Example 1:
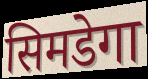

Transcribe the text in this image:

सिमडेगा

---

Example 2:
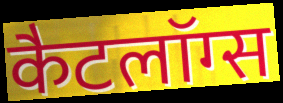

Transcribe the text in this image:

कैटलॉग्स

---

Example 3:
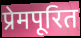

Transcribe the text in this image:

प्रेमपूरित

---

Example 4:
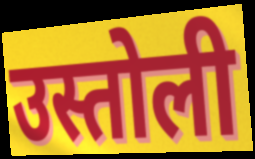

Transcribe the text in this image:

उस्तोली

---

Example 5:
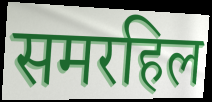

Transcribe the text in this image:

समरहिल